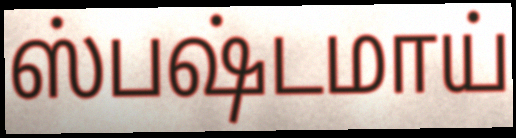
ஸ்பஷ்டமாய்